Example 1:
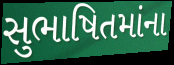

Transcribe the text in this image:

સુભાષિતમાંના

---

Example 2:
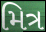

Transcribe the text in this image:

મિત્ર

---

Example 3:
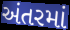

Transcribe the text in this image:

અંતરમાં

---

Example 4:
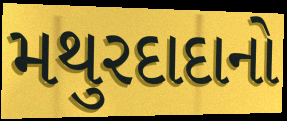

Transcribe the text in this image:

મથુરદાદાનો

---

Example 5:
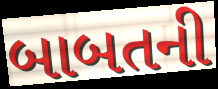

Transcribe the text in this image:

બાબતની